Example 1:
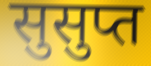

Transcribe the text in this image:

सुसुप्त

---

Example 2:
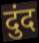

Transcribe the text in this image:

दुंद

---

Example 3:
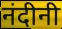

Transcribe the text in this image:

नंदीनी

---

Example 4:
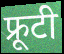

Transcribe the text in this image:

फ्रूटी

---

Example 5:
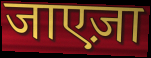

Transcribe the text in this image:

जाएज़ा